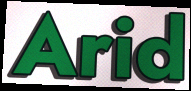
Arid